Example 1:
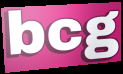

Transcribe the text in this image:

bcg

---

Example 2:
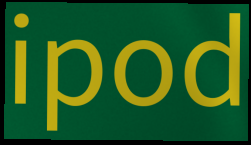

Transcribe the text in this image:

ipod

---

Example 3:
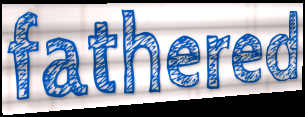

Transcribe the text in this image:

fathered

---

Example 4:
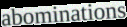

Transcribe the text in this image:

abominations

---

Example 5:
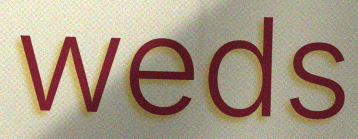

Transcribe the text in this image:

weds